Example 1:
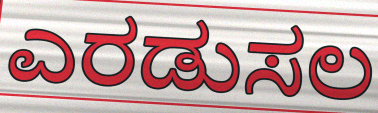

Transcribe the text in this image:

ಎರಡುಸಲ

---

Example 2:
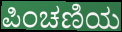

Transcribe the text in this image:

ಪಿಂಚಣಿಯ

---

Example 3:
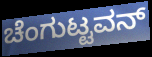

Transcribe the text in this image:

ಚೆಂಗುಟ್ಟವನ್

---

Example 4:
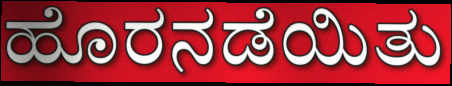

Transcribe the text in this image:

ಹೊರನಡೆಯಿತು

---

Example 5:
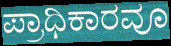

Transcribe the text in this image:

ಪ್ರಾಧಿಕಾರವೂ